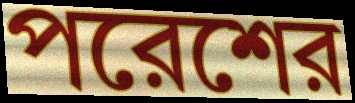
পরেশের